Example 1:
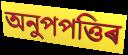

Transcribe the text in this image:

অনুপপত্তিৰ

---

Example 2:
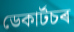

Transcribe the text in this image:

ডেকাৰ্টচৰ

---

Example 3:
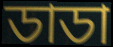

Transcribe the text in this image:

ডাডা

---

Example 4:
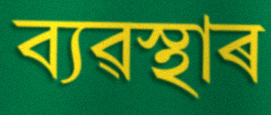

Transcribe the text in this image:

ব্য়ৱস্থাৰ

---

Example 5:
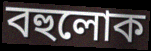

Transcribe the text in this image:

বহুলোক